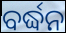
ବର୍ଦ୍ଧନ